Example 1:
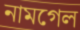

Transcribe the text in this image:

নামগেল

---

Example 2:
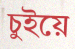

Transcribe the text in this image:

চুইয়ে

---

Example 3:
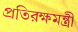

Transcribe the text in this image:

প্রতিরক্ষমন্ত্রী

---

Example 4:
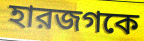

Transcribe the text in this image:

হারজগকে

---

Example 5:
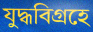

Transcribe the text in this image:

যুদ্ধবিগ্রহে